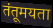
तंतूमयता